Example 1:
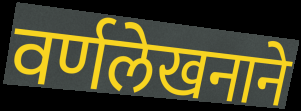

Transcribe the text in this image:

वर्णलेखनाने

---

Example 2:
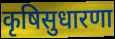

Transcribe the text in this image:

कृषिसुधारणा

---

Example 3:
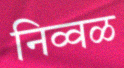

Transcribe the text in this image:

निव्‍वळ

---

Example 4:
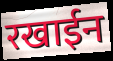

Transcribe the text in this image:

रखाईन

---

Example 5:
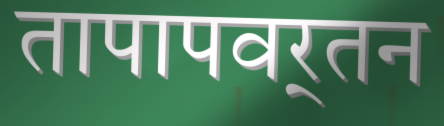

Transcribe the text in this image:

तापापवर्तन